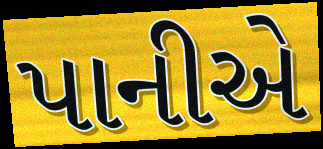
પાનીએ